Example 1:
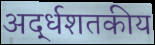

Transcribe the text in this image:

अर्द्धशतकीय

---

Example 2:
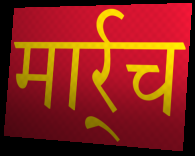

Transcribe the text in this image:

मार्र्च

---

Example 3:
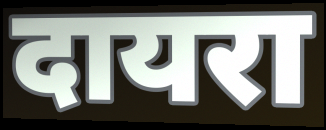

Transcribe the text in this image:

दायरा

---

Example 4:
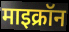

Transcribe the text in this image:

माइक्रॉन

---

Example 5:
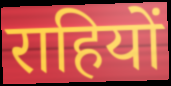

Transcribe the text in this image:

राहियों